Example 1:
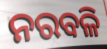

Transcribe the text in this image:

ନରବଳି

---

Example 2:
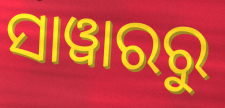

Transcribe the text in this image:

ସାୱାରରୁ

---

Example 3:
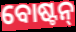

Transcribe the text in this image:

ବୋଷ୍ଟନ୍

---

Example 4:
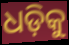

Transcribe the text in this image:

ଧଡ଼ିକୁ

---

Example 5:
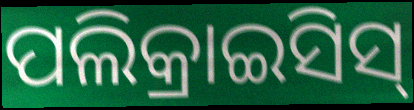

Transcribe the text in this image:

ପଲିକ୍ରାଇସିସ୍